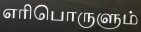
எரிபொருளும்